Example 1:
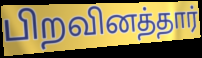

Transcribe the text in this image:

பிறவினத்தார்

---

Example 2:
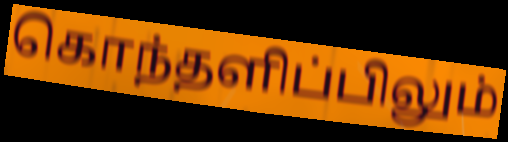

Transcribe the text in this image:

கொந்தளிப்பிலும்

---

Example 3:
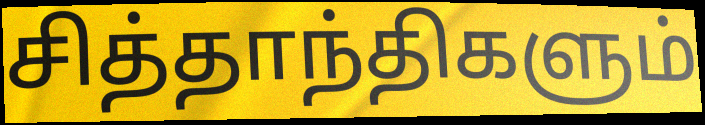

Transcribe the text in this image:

சித்தாந்திகளும்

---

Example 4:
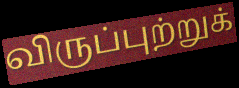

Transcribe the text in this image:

விருப்புற்றுக்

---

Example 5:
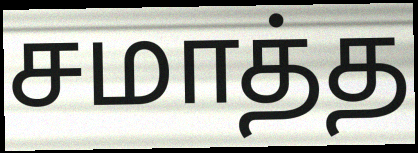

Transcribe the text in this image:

சமாத்த